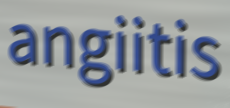
angiitis